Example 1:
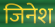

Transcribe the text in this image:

जिनेश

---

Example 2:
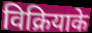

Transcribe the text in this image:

विक्रियाके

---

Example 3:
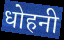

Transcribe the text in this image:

धोहनी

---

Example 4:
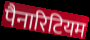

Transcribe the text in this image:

पैनारिटियम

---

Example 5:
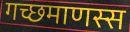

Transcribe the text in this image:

गच्छमाणस्स